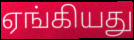
ஏங்கியது